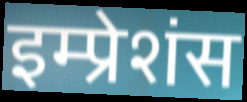
इम्प्रेशंस